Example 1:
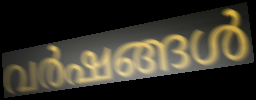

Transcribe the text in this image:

വർഷങ്ങൾ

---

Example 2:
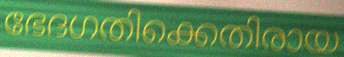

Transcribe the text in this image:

ഭേദഗതിക്കെതിരായ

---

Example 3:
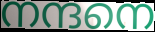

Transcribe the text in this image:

നന്ദനെ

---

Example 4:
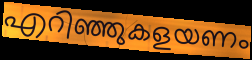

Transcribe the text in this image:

എറിഞ്ഞുകളയണം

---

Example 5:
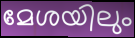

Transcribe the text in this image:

മേശയിലും